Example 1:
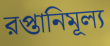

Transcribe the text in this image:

রপ্তানিমূল্য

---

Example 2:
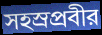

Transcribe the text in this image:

সহস্রপ্রবীর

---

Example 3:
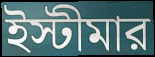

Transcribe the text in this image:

ইস্টীমার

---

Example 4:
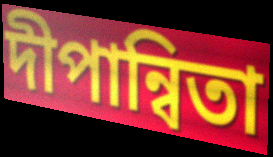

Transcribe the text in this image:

দীপান্বিতা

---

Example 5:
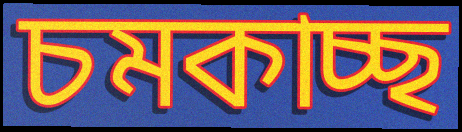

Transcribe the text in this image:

চমকাচ্ছ